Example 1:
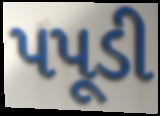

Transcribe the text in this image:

પપૂડી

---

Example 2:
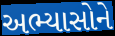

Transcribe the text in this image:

અભ્યાસોને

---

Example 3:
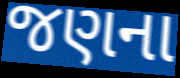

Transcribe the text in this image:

જણના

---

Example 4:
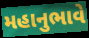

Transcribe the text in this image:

મહાનુભાવે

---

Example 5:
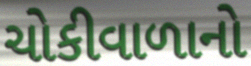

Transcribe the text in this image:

ચોકીવાળાનો